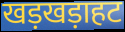
खड़खड़ाहट